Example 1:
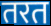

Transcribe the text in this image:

तरत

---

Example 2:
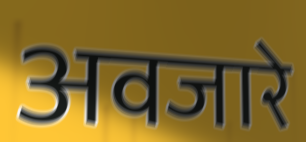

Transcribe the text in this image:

अवजारे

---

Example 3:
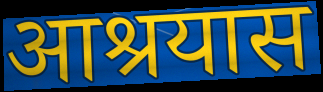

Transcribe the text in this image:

आश्रयास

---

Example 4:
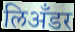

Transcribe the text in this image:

लिअँडर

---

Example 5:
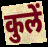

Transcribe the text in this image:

कुलें